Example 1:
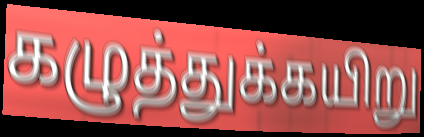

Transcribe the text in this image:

கழுத்துக்கயிறு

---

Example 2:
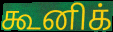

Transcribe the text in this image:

கூனிக்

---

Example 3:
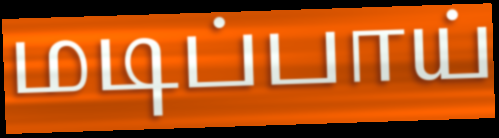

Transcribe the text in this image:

மடிப்பாய்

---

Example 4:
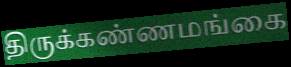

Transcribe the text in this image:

திருக்கண்ணமங்கை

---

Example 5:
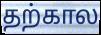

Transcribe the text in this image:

தற்கால